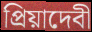
প্রিয়াদেবী